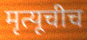
मृत्यूचीच